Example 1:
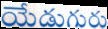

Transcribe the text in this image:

యేడుగురు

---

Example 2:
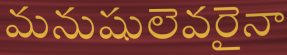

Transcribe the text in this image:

మనుషులెవరైనా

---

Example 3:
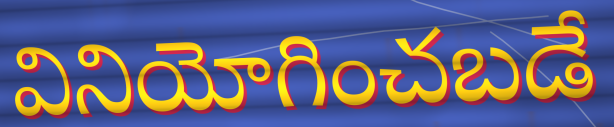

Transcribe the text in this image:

వినియోగించబడే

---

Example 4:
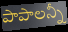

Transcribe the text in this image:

పాపాలన్నీ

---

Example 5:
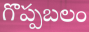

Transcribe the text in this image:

గొప్పబలం